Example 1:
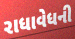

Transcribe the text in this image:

રાધાવેધની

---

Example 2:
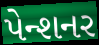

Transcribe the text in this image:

પેન્શનર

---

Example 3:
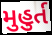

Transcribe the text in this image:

મુહુર્ત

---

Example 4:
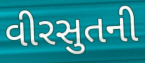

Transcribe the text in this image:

વીરસુતની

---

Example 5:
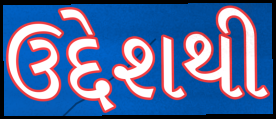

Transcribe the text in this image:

ઉદ્દેશથી